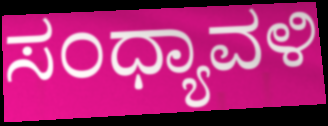
ಸಂಧ್ಯಾವಳಿ